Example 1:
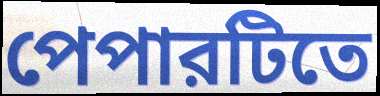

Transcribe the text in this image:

পেপারটিতে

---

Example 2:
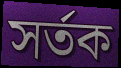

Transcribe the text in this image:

সর্তক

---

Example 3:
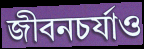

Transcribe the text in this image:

জীবনচর্যাও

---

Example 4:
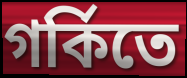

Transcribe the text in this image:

গর্কিতে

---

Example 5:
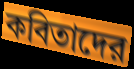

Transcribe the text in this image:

কবিতাদের